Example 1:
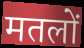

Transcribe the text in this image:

मतलों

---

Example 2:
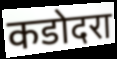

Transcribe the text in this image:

कडोदरा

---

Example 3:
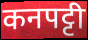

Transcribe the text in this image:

कनपट्टी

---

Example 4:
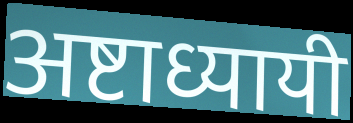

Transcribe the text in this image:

अष्टाध्यायी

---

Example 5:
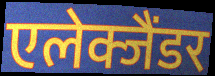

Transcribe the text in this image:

एलेक्जैंडर